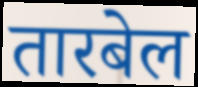
तारबेल